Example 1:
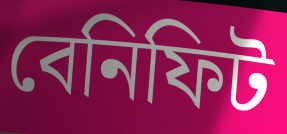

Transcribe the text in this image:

বেনিফিট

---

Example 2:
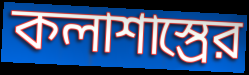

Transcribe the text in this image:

কলাশাস্ত্রের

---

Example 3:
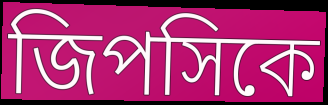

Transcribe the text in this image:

জিপসিকে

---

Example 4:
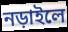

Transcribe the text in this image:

নড়াইলে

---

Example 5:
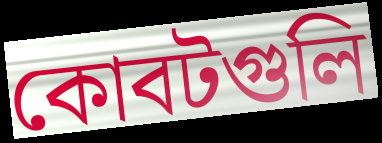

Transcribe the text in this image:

কোবটগুলি